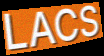
LACS